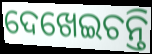
ଦେଖେଇଚନ୍ତି